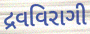
દ્રવવિરાગી